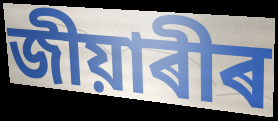
জীয়াৰীৰ